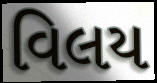
વિલય